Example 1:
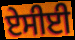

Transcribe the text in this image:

ਏਸੀਈ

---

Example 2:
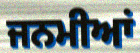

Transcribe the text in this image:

ਜਨਮੀਆਂ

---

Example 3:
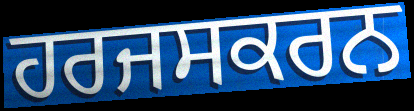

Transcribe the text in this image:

ਹਰਜਸਕਰਨ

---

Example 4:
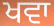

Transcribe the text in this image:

ਖਵਾ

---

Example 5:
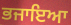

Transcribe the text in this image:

ਭਜਾਇਆ